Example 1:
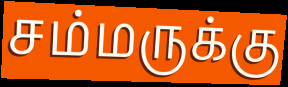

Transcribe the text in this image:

சம்மருக்கு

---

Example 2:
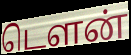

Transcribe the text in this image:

டௌன்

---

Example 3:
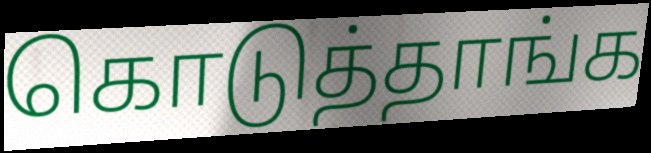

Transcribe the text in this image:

கொடுத்தாங்க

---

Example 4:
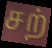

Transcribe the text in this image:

சற்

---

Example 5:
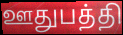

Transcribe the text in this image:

ஊதுபத்தி